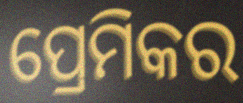
ପ୍ରେମିକର